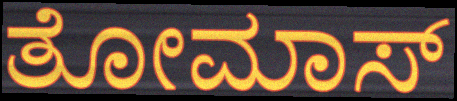
ತೋಮಾಸ್